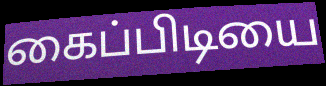
கைப்பிடியை